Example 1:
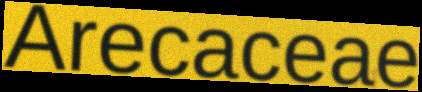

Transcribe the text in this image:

Arecaceae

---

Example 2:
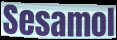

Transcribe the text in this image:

Sesamol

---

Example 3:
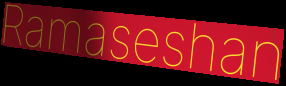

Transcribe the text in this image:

Ramaseshan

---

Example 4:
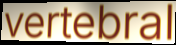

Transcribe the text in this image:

vertebral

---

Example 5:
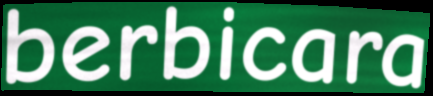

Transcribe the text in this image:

berbicara